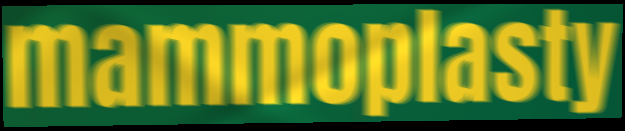
mammoplasty